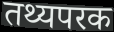
तथ्यपरक